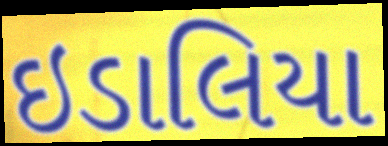
ઇડાલિયા